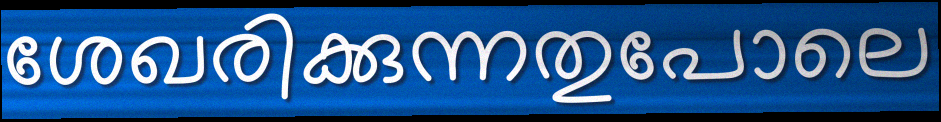
ശേഖരിക്കുന്നതുപോലെ